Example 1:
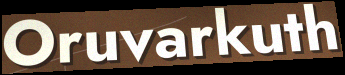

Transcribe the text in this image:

Oruvarkuth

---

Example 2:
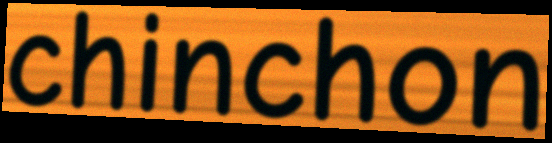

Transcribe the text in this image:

chinchon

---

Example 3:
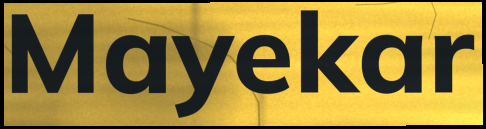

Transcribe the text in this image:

Mayekar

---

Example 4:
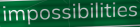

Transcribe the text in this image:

impossibilities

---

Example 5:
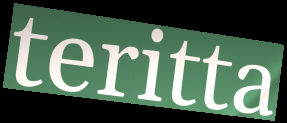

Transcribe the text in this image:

teritta